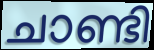
ചാണ്ടി